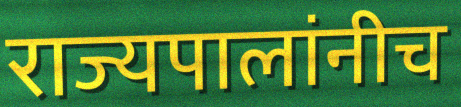
राज्यपालांनीच